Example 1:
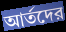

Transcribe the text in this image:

আর্তদের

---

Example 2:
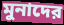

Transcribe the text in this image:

মুনাদের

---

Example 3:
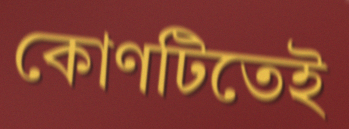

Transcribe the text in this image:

কোণটিতেই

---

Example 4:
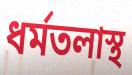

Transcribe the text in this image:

ধর্মতলাস্থ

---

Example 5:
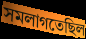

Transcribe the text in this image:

সমলাগতেছিল